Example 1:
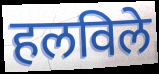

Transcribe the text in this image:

हलविले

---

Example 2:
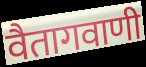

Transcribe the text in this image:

वैतागवाणी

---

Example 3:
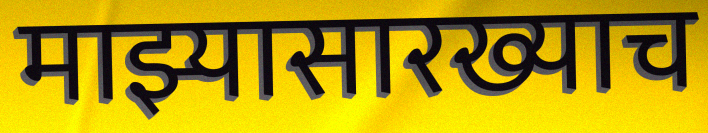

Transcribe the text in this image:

माझ्यासारख्याच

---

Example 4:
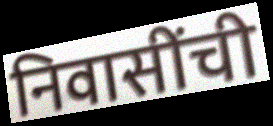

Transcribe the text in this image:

निवासींची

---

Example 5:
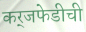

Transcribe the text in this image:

कर्जफेडीची